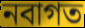
নবাগত